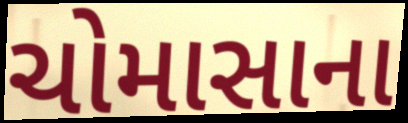
ચોમાસાના